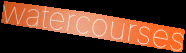
watercourses